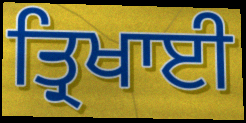
ਤ੍ਰਿਖਾਈ